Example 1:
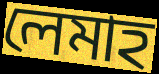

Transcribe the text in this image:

লেমাহ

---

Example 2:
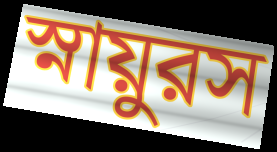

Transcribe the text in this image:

স্নায়ুরস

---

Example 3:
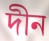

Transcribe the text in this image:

দীন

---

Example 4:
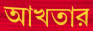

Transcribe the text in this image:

আখতার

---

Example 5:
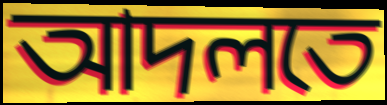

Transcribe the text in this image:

আদলতে